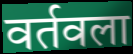
वर्तवला